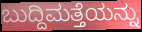
ಬುದ್ದಿಮತ್ತೆಯನ್ನು